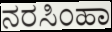
ನರಸಿಂಹಾ